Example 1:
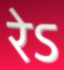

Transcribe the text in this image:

रेऽ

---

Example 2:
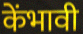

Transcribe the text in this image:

केंभावी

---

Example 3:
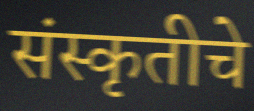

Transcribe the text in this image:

संस्कृतीचे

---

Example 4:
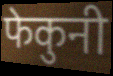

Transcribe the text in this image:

फेकुनी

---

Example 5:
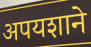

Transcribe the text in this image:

अपयशाने